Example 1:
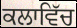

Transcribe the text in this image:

ਕਲਾਵਿੱਚ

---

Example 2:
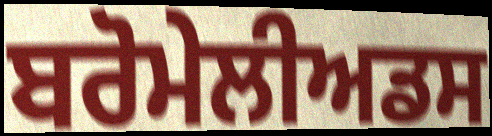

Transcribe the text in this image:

ਬਰੋਮੇਲੀਅਡਸ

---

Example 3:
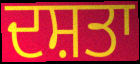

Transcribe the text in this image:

ਦਸ਼ਤਾ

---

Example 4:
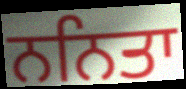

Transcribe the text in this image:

ਨਨਿਤਾ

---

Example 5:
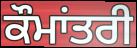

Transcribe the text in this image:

ਕੌਮਾਂਤਰੀ